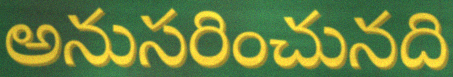
అనుసరించునది